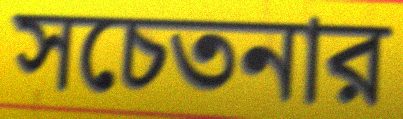
সচেতনার